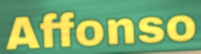
Affonso